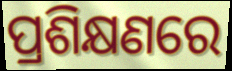
ପ୍ରଶିକ୍ଷଣରେ